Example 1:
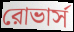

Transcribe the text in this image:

রোভার্স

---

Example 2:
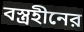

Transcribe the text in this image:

বস্ত্রহীনের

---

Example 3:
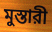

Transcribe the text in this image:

মুস্তারী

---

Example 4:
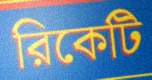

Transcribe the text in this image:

রিকেটি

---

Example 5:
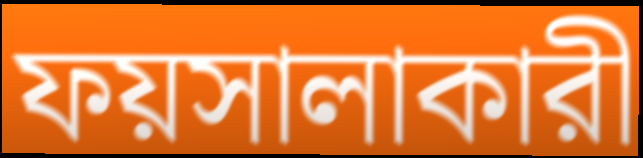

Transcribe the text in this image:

ফয়সালাকারী